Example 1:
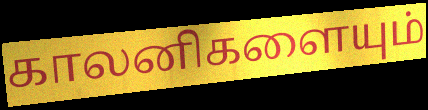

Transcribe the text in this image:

காலனிகளையும்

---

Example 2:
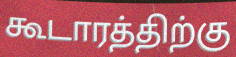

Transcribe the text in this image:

கூடாரத்திற்கு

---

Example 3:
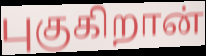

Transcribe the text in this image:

புகுகிறான்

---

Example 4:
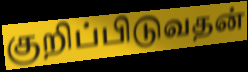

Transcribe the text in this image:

குறிப்பிடுவதன்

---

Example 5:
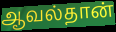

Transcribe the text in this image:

ஆவல்தான்